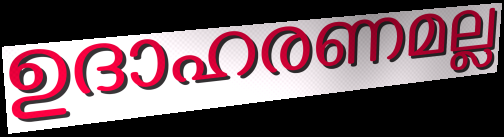
ഉദാഹരണമല്ല